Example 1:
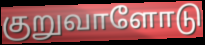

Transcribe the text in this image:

குறுவாளோடு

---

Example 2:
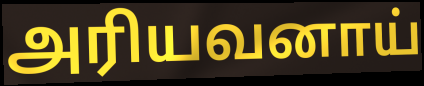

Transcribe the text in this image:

அரியவனாய்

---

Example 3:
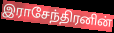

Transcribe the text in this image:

இராசேந்திரனின்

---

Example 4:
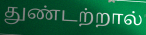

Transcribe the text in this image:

துண்டற்றால்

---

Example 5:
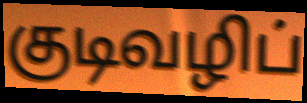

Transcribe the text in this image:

குடிவழிப்